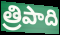
త్రిపాది